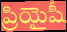
ప్రియైషీ